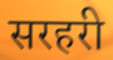
सरहरी